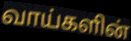
வாய்களின்